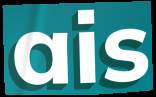
ais